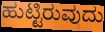
ಹುಟ್ಟಿರುವುದು